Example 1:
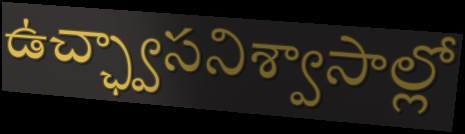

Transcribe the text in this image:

ఉచ్ఛ్వాసనిశ్వాసాల్లో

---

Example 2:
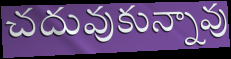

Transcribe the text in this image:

చదువుకున్నావు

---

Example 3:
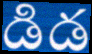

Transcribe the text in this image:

డిడ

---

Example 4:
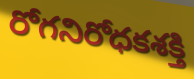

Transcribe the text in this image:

రోగనిరోధకశక్తి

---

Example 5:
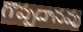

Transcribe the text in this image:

గొప్పదానవు